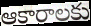
ఆకారాలకు